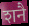
शनै